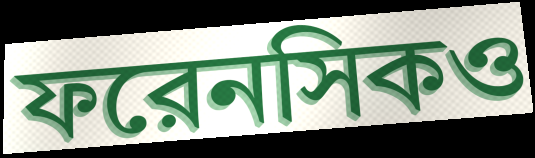
ফরেনসিকও